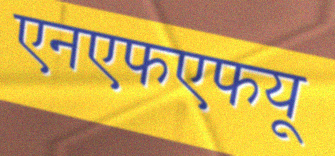
एनएफएफयू